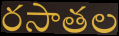
రసాతల